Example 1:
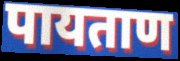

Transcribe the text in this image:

पायताण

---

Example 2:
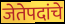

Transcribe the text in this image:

जेतेपदांचे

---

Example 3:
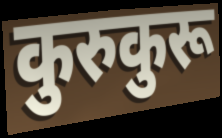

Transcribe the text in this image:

कुरुकुरू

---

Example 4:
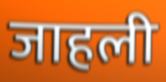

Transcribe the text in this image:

जाहली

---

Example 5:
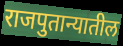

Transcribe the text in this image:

राजपुतान्यातील